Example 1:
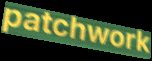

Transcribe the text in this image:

patchwork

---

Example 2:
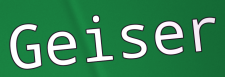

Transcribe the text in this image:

Geiser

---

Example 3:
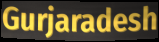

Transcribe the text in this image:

Gurjaradesh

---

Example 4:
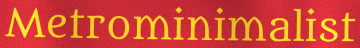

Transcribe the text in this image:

Metrominimalist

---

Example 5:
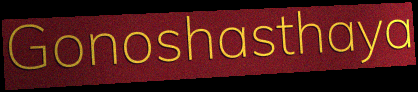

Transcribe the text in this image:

Gonoshasthaya